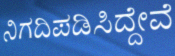
ನಿಗದಿಪಡಿಸಿದ್ದೇವೆ